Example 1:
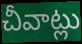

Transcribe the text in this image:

చీవాట్లు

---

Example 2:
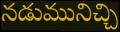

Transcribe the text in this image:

నడుమునిచ్చి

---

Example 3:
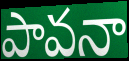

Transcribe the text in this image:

పావనా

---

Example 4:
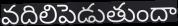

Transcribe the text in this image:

వదిలిపెడుతుందా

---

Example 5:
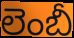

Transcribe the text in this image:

లెంబీ